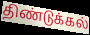
திண்டுக்கல்